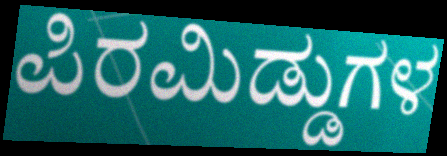
ಪಿರಮಿಡ್ಡುಗಳ